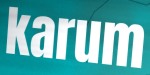
karum